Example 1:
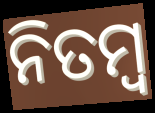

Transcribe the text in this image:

ନିତମ୍ୱ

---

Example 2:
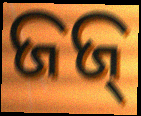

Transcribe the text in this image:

ଜଜ୍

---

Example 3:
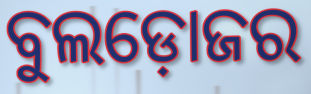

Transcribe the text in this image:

ବୁଲଡ଼ୋଜର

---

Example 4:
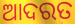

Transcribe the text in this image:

ଆଦରତ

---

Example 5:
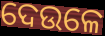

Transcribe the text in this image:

ଦେଉଳେ